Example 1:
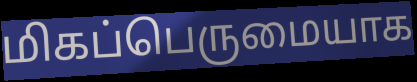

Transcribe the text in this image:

மிகப்பெருமையாக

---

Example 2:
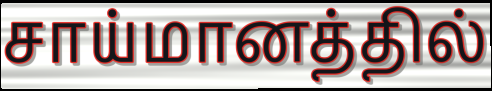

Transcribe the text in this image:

சாய்மானத்தில்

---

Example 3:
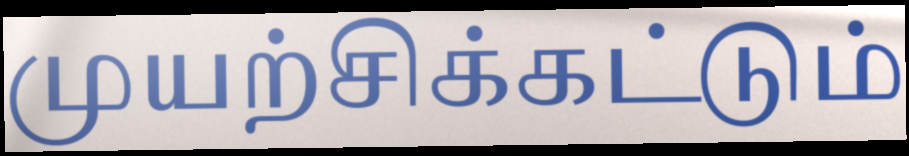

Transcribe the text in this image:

முயற்சிக்கட்டும்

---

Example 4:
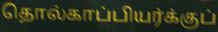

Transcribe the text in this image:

தொல்காப்பியர்க்குப்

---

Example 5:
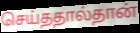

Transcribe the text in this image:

செய்ததால்தான்